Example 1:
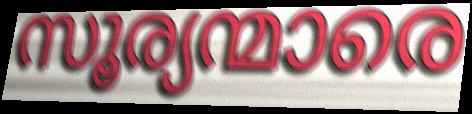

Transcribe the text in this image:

സൂര്യന്മാരെ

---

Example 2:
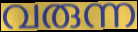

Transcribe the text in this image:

വരുന്ന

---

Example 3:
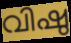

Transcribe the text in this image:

വിഷു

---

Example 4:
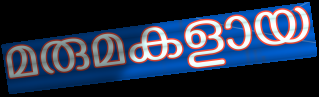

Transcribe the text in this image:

മരുമകളായ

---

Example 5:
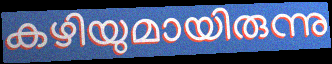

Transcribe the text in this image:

കഴിയുമായിരുന്നു